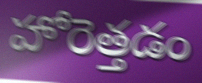
హోరెత్తడం